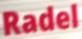
Radel